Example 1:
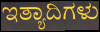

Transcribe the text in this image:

ಇತ್ಯಾದಿಗಳು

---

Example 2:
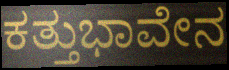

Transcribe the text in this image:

ಕತ್ತುಭಾವೇನ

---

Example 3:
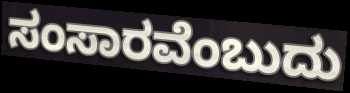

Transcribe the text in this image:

ಸಂಸಾರವೆಂಬುದು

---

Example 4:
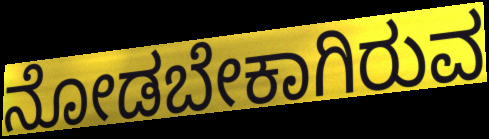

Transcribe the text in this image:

ನೋಡಬೇಕಾಗಿರುವ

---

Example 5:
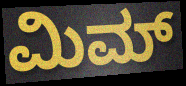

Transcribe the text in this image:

ಮಿಮ್